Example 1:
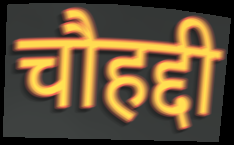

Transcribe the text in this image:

चौहद्दी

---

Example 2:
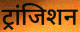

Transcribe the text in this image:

ट्रांजिशन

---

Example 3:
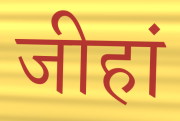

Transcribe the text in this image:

जीहां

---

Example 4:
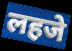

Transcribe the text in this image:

लहजे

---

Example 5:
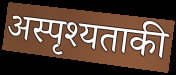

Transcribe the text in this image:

अस्पृश्यताकी